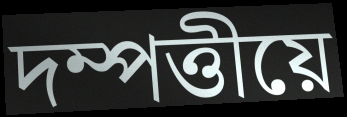
দম্পত্তীয়ে